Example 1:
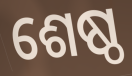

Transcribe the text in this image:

ଶେଷ୍ଠ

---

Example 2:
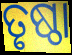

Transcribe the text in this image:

ତୃଷ୍ଠା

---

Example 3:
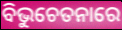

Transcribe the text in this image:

ବିଭୁଚେତନାରେ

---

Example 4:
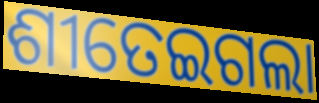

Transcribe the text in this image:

ଶୀତେଇଗଲା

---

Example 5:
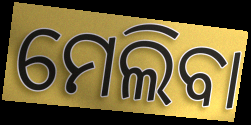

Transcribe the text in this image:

ମେଲିବା